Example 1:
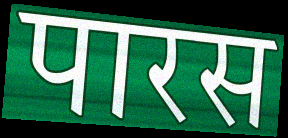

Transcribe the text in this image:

पारस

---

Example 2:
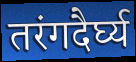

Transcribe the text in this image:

तरंगदैर्घ्य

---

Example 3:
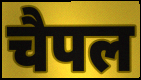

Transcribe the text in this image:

चैपल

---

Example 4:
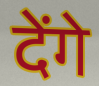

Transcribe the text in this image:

देंगे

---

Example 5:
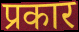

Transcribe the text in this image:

प्रकार